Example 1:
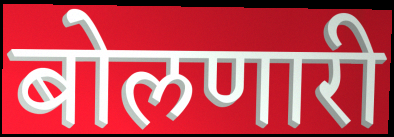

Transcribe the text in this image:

बोलणारी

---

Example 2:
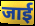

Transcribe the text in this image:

जाई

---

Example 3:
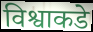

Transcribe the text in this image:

विश्वाकडे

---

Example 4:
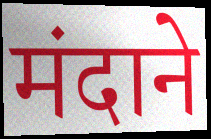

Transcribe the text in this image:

मंदाने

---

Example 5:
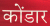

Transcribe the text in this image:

कोंडार